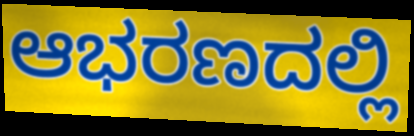
ಆಭರಣದಲ್ಲಿ